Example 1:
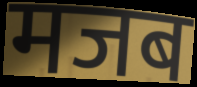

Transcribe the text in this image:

मजब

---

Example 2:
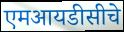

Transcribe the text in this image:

एमआयडीसीचे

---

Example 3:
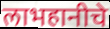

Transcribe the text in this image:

लाभहानीचे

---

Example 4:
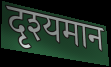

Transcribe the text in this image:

दृश्यमान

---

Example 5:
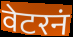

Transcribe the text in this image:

वेटरनं